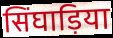
सिंघाड़िया